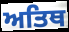
ਅਤਿਥ